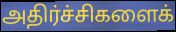
அதிர்ச்சிகளைக்